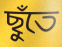
ছুঁতে